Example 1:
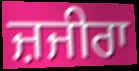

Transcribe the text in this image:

ਜ਼ਜੀਰਾ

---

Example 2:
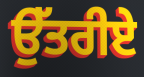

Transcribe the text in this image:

ਉੱਤਰੀਏ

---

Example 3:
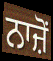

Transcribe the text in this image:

ਨਾਜ਼ੋਂ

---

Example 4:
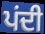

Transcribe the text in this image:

ਪਂਦੀ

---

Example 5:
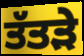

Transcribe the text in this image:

ਤੱਤੜੇ